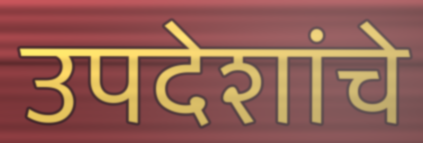
उपदेशांचे